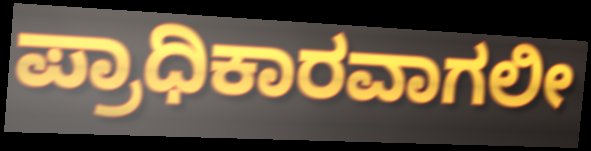
ಪ್ರಾಧಿಕಾರವಾಗಲೀ